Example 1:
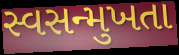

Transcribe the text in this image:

સ્વસન્મુખતા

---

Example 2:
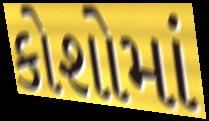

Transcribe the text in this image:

કોશોમાં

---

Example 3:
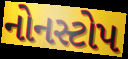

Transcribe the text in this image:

નોનસ્ટોપ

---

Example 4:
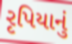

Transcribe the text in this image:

રૃપિયાનું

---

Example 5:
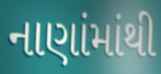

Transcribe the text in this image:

નાણાંમાંથી